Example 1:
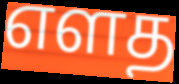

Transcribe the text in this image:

எளத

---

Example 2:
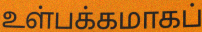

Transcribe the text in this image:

உள்பக்கமாகப்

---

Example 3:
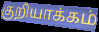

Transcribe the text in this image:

குறியாக்கம்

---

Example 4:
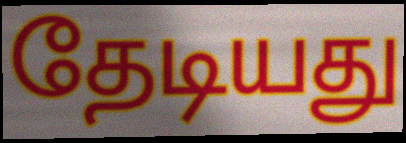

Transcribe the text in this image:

தேடியது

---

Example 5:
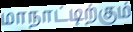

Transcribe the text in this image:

மாநாட்டிற்கும்